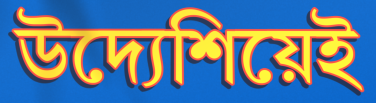
উদ্যেশিয়েই